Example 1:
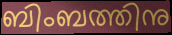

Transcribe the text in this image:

ബിംബത്തിനു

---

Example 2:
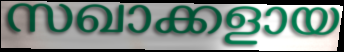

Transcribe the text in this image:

സഖാക്കളായ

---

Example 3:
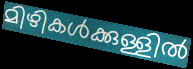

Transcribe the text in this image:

മിഴികൾക്കുള്ളിൽ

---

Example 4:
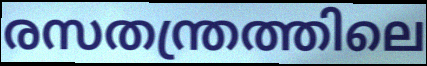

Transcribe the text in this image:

രസതന്ത്രത്തിലെ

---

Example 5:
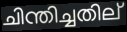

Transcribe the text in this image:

ചിന്തിച്ചതില്